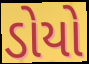
ડોયો